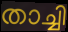
താച്ചി